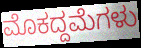
ಮೊಕದ್ದಮೆಗಳು